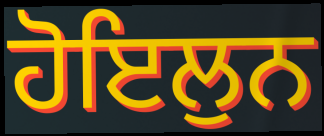
ਹੋਇਲੁਨ